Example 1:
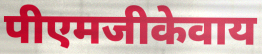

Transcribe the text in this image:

पीएमजीकेवाय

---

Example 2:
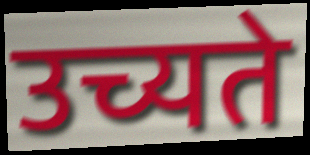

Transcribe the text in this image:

उच्यते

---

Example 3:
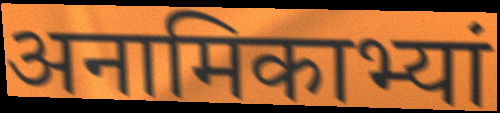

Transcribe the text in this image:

अनामिकाभ्यां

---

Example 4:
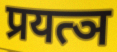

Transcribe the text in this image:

प्रयत्ञ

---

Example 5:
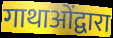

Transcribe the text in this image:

गाथाओंद्वारा